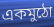
একমুঠো